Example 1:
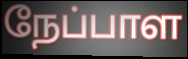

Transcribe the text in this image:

நேப்பாள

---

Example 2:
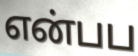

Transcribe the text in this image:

என்பப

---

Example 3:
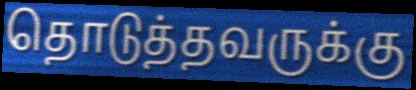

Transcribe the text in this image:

தொடுத்தவருக்கு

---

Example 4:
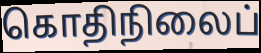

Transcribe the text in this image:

கொதிநிலைப்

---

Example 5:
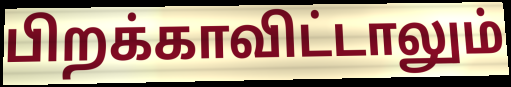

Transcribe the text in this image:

பிறக்காவிட்டாலும்